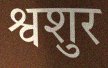
श्वशुर